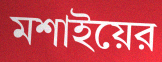
মশাইয়ের